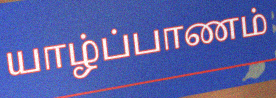
யாழ்ப்பாணம்